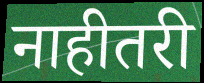
नाहीतरी